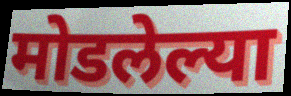
मोडलेल्या